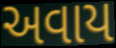
અવાય